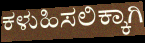
ಕಳುಹಿಸಲಿಕ್ಕಾಗಿ